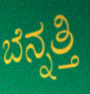
ಬೆನ್ನತ್ತಿ